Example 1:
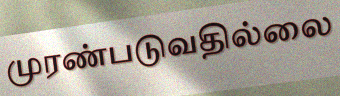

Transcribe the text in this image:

முரண்படுவதில்லை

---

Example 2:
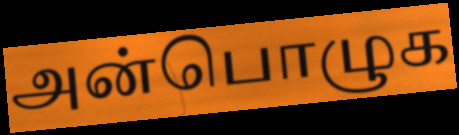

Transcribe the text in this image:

அன்பொழுக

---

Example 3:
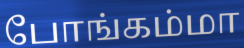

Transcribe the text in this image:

போங்கம்மா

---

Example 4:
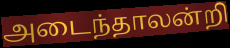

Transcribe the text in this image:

அடைந்தாலன்றி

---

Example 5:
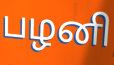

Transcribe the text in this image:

பழனி